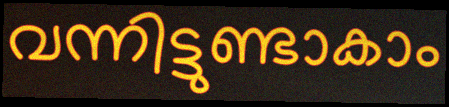
വന്നിട്ടുണ്ടാകാം